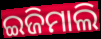
ଇଜିମାଲି